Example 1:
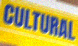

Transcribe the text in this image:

CULTURAL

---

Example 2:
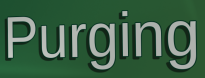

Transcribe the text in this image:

Purging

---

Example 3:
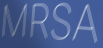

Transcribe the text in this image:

MRSA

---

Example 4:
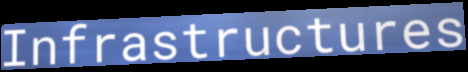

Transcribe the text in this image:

Infrastructures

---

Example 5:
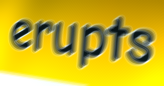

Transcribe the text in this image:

erupts